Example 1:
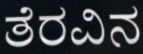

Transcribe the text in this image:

ತೆರವಿನ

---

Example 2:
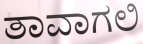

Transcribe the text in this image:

ತಾವಾಗಲಿ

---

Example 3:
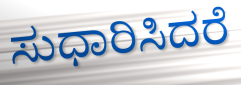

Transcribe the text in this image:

ಸುಧಾರಿಸಿದರೆ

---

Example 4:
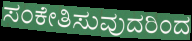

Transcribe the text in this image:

ಸಂಕೇತಿಸುವುದರಿಂದ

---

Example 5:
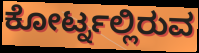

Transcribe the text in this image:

ಕೋರ್ಟ್ನಲ್ಲಿರುವ